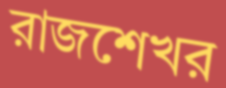
রাজশেখর